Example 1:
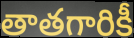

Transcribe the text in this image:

తాతగారికీ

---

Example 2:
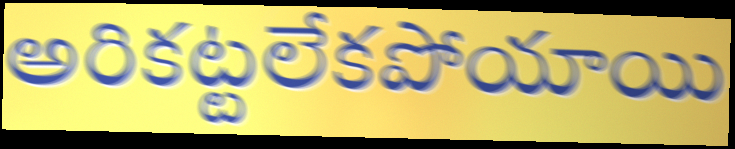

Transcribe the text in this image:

అరికట్టలేకపోయాయి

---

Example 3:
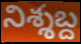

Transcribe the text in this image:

నిశ్శబ్ద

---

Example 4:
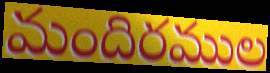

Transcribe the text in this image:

మందిరముల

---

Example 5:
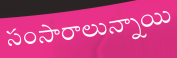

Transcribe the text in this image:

సంసారాలున్నాయి